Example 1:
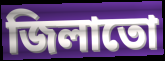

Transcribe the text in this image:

জিলাতো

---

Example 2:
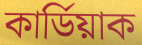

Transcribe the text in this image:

কাৰ্ডিয়াক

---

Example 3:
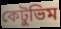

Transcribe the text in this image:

কেটুভিম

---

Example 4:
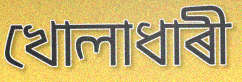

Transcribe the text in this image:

খোলাধাৰী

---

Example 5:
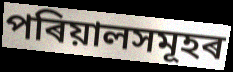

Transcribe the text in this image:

পৰিয়ালসমূহৰ